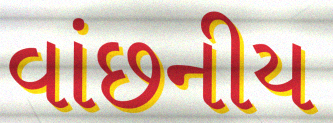
વાંછનીય